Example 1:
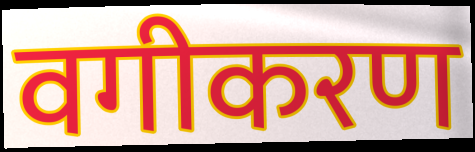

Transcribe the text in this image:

वगीकरण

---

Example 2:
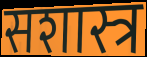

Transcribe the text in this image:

सशास्त्र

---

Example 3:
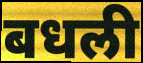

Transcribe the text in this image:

बधली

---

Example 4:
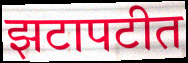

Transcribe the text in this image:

झटापटीत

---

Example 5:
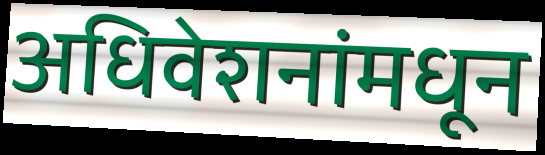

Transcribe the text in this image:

अधिवेशनांमधून